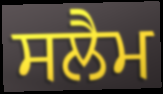
ਸਲੈਮ